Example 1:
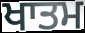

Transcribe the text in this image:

ਖਾਤਮ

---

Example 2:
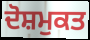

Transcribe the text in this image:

ਦੋਸ਼ਮੁਕਤ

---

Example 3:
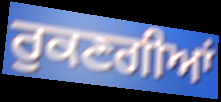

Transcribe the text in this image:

ਰੁਕਣਗੀਆਂ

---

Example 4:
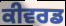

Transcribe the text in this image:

ਕੀਵਰਡ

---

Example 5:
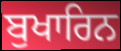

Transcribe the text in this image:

ਬੁਖਾਰਿਨ